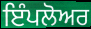
ਇੰਪਲੋਅਰ